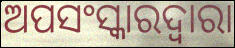
ଅପସଂସ୍କାରଦ୍ୱାରା